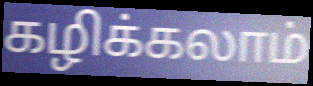
கழிக்கலாம்